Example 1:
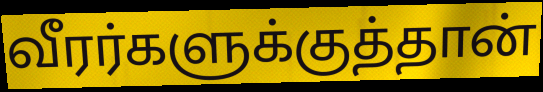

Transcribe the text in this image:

வீரர்களுக்குத்தான்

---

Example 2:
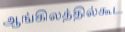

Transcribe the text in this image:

ஆங்கிலத்தில்கூட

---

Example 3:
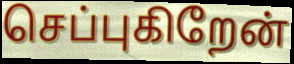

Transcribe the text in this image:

செப்புகிறேன்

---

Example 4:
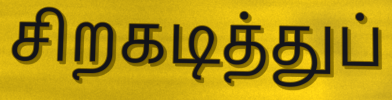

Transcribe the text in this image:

சிறகடித்துப்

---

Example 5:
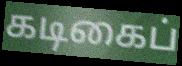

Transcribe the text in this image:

கடிகைப்